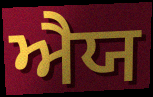
ਐਯ